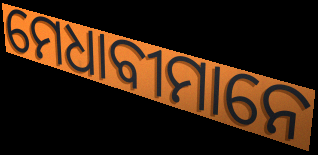
ମେଧାବୀମାନେ